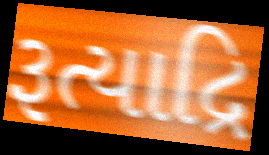
રૂત્યાદ્રિ